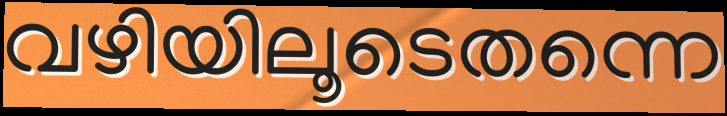
വഴിയിലൂടെതന്നെ